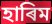
হাৰিম